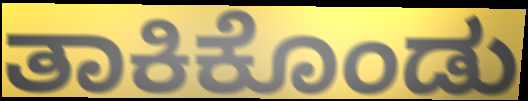
ತಾಕಿಕೊಂಡು